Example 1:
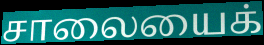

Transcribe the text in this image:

சாலையைக்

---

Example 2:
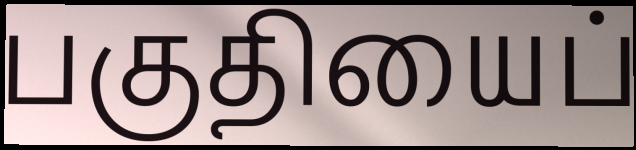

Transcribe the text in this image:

பகுதியைப்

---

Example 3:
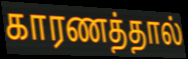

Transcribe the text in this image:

காரணத்தால்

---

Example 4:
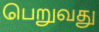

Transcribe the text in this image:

பெறுவது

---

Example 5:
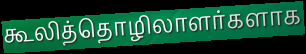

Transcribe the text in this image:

கூலித்தொழிலாளர்களாக